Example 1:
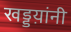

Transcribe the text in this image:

खड्डय़ांनी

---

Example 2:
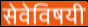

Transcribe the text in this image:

सेवेविषयी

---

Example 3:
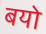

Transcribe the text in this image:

बयो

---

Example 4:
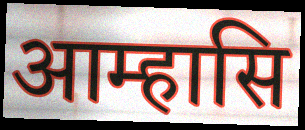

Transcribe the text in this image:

आम्हासि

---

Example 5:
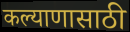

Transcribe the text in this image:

कल्याणासाठी